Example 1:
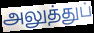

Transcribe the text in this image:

அலுத்துப்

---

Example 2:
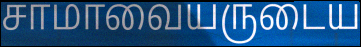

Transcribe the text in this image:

சாமாவையருடைய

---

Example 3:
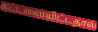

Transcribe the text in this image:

கட்டளையிட்டதால்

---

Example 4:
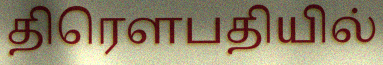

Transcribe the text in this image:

திரௌபதியில்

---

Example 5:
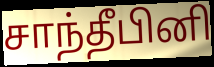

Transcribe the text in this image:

சாந்தீபினி